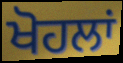
ਖੋਹਲਾਂ